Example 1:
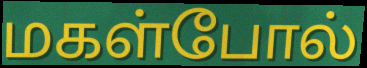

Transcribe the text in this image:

மகள்போல்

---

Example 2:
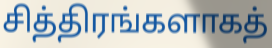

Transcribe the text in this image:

சித்திரங்களாகத்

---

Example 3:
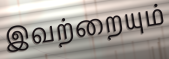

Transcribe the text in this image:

இவற்றையும்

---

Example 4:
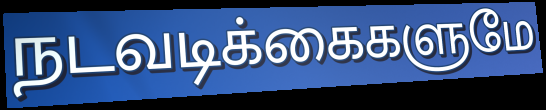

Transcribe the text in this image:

நடவடிக்கைகளுமே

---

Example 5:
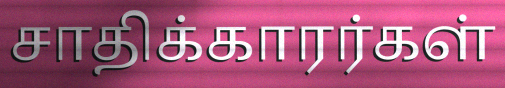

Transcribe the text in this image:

சாதிக்காரர்கள்